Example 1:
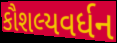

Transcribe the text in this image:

કૌશલ્યવર્ધન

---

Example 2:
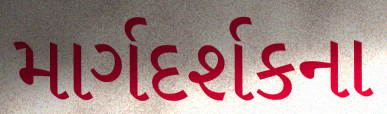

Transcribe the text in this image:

માર્ગદર્શકના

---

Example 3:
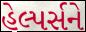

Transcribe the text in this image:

હેલ્પર્સને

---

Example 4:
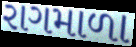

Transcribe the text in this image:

રાગમાળા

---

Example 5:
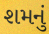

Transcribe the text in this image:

શમનું